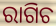
ରାଗିଚ